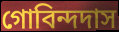
গোবিন্দদাস